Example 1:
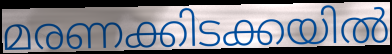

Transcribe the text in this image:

മരണക്കിടക്കയിൽ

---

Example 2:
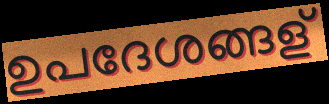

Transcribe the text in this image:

ഉപദേശങ്ങള്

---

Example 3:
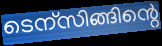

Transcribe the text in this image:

ടെന്സിങ്ങിന്റെ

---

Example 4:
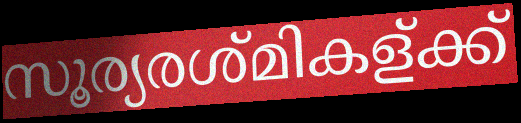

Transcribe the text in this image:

സൂര്യരശ്മികള്ക്ക്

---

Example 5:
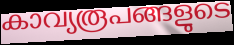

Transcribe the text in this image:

കാവ്യരൂപങ്ങളുടെ